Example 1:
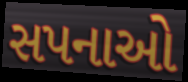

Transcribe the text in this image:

સપનાઓ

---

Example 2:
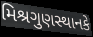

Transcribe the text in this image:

મિશ્રગુણસ્થાનકે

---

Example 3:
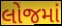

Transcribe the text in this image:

લોજમાં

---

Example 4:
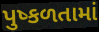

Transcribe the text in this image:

પુષ્કળતામાં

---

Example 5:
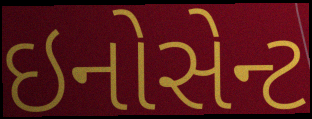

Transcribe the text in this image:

ઇનોસેન્ટ